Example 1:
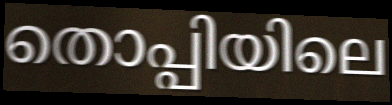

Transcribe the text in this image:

തൊപ്പിയിലെ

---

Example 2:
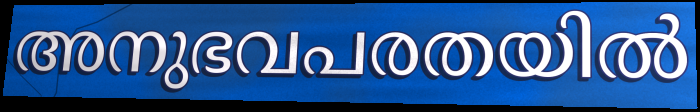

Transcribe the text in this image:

അനുഭവപരതയിൽ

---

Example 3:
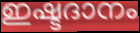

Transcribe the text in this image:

ഇഷ്ടദാനം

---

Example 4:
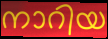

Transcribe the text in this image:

നാറിയ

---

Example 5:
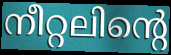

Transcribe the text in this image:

നീറ്റലിന്റെ